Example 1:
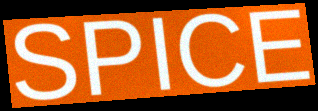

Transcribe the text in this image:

SPICE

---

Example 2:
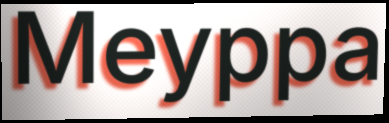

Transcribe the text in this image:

Meyppa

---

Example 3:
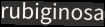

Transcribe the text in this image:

rubiginosa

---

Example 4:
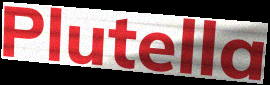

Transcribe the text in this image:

Plutella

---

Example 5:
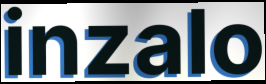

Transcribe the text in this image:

inzalo